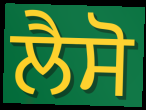
ਲੈਸੋ